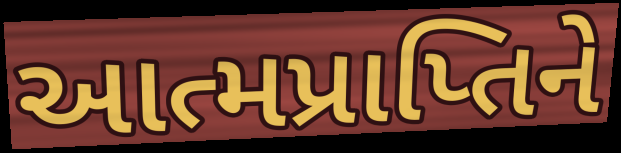
આત્મપ્રાપ્તિને